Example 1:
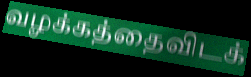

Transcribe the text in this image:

வழக்கத்தைவிடக்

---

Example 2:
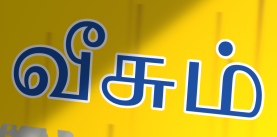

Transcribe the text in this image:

வீசும்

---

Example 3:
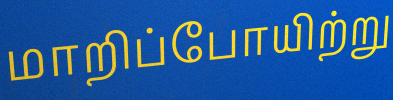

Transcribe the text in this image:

மாறிப்போயிற்று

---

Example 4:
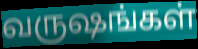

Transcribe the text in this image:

வருஷங்கள்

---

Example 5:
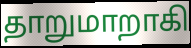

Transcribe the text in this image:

தாறுமாறாகி